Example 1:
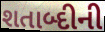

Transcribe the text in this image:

શતાબ્દીની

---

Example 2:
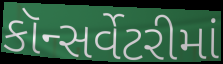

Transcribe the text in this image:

કૉન્સર્વેટરીમાં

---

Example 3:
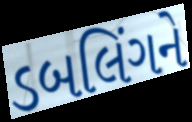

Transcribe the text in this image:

ડબલિંગને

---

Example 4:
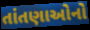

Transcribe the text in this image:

તાંતણાઓનો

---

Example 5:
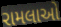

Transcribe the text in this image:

રામલાઓ